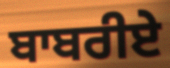
ਬਾਬਰੀਏ